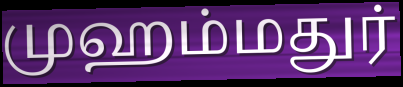
முஹம்மதுர்